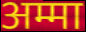
अम्मा